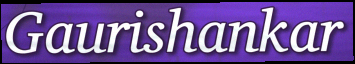
Gaurishankar